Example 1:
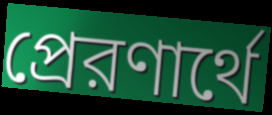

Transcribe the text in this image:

প্রেরণার্থে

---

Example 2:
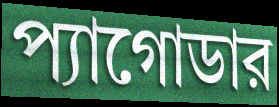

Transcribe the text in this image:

প্যাগোডার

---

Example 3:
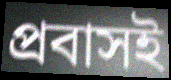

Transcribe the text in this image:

প্রবাসই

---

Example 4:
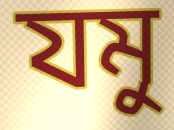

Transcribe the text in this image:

যমু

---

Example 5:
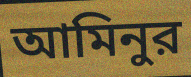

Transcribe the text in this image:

আমিনুর